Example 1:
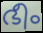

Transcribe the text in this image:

ഭീം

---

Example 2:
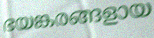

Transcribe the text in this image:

ഭയങ്കരങ്ങളായ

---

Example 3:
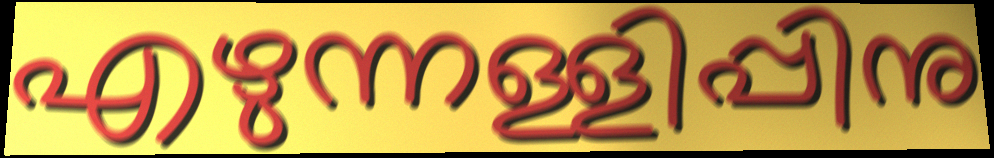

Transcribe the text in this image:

എഴുന്നള്ളിപ്പിനു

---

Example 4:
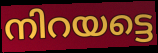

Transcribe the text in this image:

നിറയട്ടെ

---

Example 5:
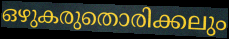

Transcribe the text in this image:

ഒഴുകരുതൊരിക്കലും